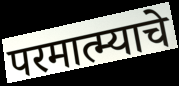
परमात्म्याचे